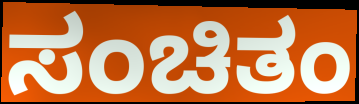
ಸಂಚಿತಂ